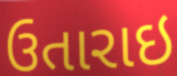
ઉતારાઇ